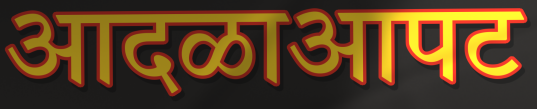
आदळाआपट